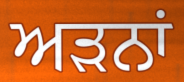
ਅੜਨਾਂ